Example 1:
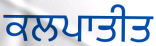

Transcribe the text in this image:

ਕਲਪਾਤੀਤ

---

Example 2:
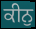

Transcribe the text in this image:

ਕੀਨੁ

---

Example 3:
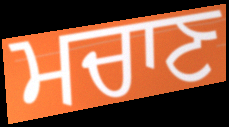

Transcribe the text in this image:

ਮਚਾਣ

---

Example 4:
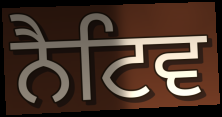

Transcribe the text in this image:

ਨੈਟਿਵ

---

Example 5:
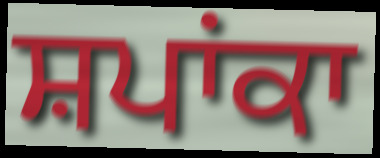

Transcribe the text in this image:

ਸ਼ਪਾਂਕਾ